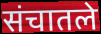
संचातले